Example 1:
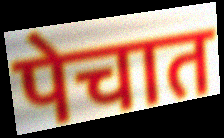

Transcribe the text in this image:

पेचात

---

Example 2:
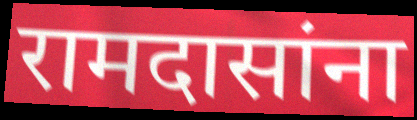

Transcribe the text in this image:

रामदासांना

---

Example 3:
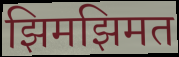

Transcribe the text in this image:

झिमझिमत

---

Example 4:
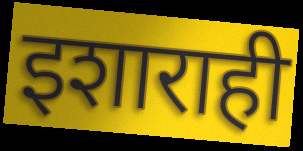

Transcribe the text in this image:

इशाराही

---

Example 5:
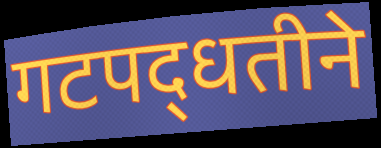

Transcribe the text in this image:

गटपद्धतीने